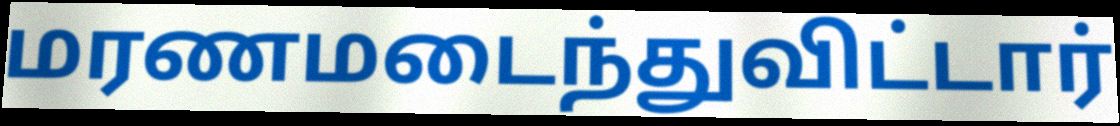
மரணமடைந்துவிட்டார்